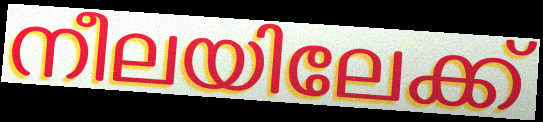
നീലയിലേക്ക്